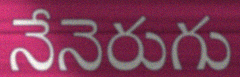
నేనెరుగు